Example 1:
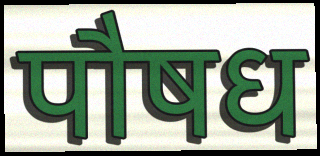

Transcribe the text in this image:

पौषध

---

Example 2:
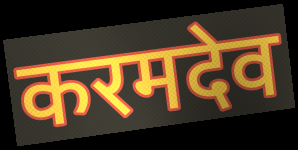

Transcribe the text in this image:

करमदेव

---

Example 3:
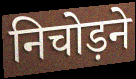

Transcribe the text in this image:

निचोड़ने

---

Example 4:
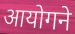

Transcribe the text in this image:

आयोगने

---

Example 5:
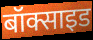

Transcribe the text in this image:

बॉक्साइड